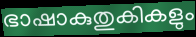
ഭാഷാകുതുകികളും